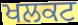
ਖਲਕਟ